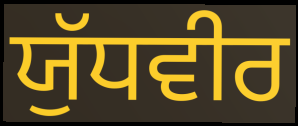
ਯੁੱਧਵੀਰ